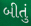
બીતું